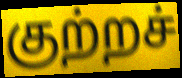
குற்றச்